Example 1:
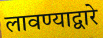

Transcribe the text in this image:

लावण्याद्वारे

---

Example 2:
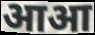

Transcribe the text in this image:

आआ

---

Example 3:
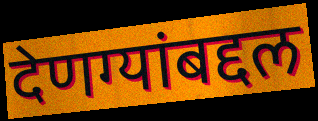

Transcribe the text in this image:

देणग्यांबद्दल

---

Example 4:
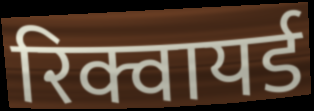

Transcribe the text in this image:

रिक्वायर्ड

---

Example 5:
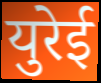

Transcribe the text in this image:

युरेई